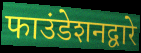
फाउंडेशनद्वारे